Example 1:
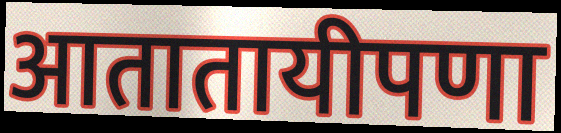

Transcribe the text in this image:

आतातायीपणा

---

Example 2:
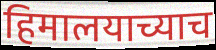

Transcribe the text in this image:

हिमालयाच्याच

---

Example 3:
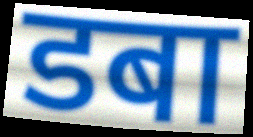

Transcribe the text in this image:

डबा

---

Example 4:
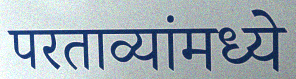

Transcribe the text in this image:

परताव्यांमध्ये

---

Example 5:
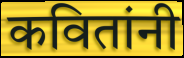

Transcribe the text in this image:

कवितांनी